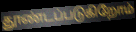
தூண்டப்படுகிறோம்